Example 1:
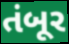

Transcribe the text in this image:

તંબૂર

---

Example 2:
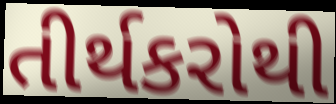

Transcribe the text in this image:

તીર્થકરોથી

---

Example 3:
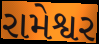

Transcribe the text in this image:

રામેશ્વર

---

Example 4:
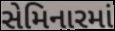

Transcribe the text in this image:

સેમિનારમાં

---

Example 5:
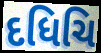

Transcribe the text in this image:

દધિચિ